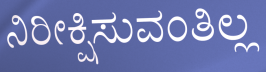
ನಿರೀಕ್ಷಿಸುವಂತಿಲ್ಲ